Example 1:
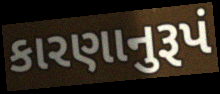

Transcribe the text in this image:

કારણાનુરૂપં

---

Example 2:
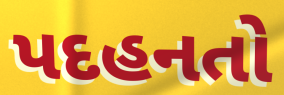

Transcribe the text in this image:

પદહનતો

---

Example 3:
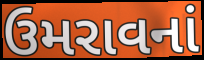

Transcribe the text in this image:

ઉમરાવનાં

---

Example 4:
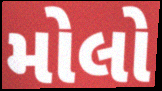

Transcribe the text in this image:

મોલો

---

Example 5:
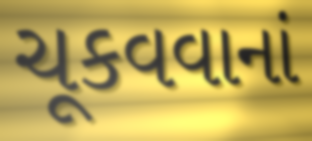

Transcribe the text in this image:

ચૂકવવાનાં